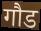
गौड